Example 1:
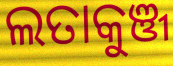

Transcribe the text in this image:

ଲତାକୁଞ୍ଜ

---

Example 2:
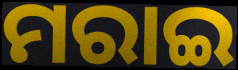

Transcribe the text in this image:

ମରାଇ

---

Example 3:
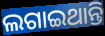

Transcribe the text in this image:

ଲଗାଇଥାନ୍ତି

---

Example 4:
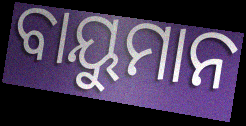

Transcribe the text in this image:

ବାୟୁମାନ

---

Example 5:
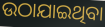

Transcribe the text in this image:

ଉଠାଯାଇଥିବା